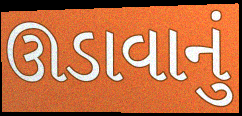
ઊડાવાનું